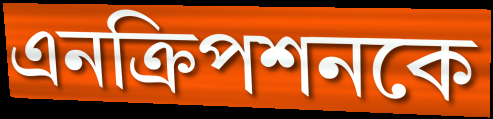
এনক্রিপশনকে